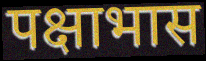
पक्षाभास